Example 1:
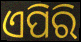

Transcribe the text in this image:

ଏପିରି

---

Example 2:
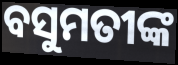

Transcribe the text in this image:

ବସୁମତୀଙ୍କ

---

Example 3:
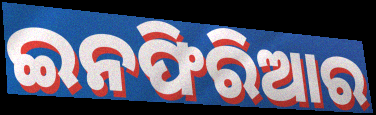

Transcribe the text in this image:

ଇନଫିରିଆର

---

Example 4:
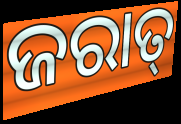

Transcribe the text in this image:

ଜରାତ୍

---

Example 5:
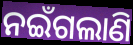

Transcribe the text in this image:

ନଇଁଗଲାଣି